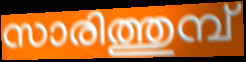
സാരിത്തുമ്പ്